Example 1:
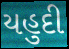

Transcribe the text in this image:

યહુદી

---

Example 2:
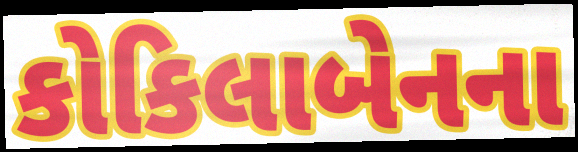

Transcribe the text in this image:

કોકિલાબેનના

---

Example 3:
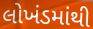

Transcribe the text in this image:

લોખંડમાંથી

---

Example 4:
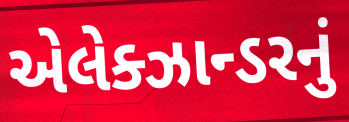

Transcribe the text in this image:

એલેક્ઝાન્ડરનું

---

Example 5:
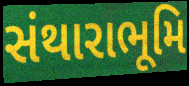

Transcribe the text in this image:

સંથારાભૂમિ